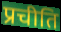
प्रचीति